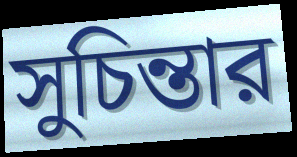
সুচিন্তার